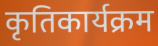
कृतिकार्यक्रम